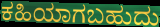
ಕಹಿಯಾಗಬಹುದು